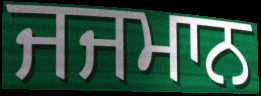
ਜਜਮਾਨ